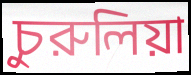
চুৰুলিয়া